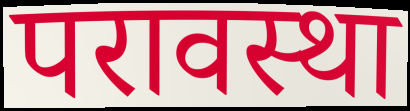
परावस्था